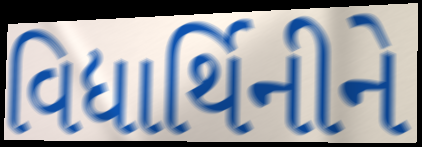
વિદ્યાર્થિનીને